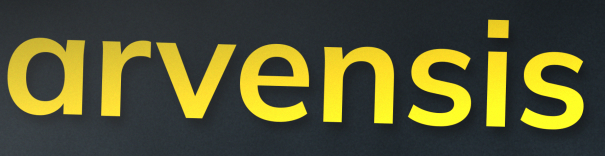
arvensis